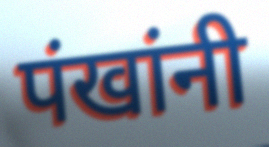
पंखांनी